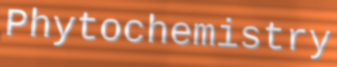
Phytochemistry